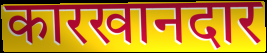
कारखानदार